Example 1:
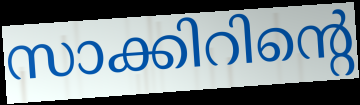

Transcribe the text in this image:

സാക്കിറിന്റെ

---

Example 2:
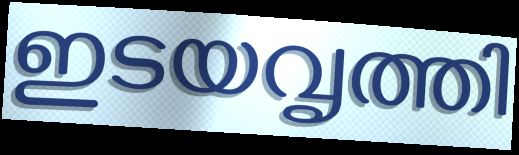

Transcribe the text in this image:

ഇടയവൃത്തി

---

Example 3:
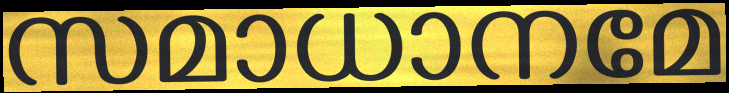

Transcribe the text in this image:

സമാധാനമേ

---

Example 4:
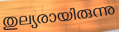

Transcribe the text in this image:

തുല്യരായിരുന്നു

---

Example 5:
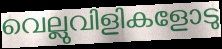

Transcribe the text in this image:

വെല്ലുവിളികളോടു